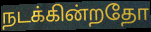
நடக்கின்றதோ